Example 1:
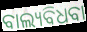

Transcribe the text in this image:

ବାଲ୍ୟବିଧବା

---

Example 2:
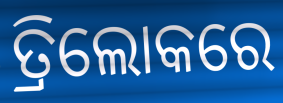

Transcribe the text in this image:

ତ୍ରିଲୋକରେ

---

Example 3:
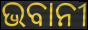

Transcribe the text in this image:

ଭବାନୀ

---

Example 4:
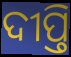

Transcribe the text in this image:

ଦୀପ୍ତି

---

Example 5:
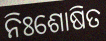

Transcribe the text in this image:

ନିଃଶୋଷିତ